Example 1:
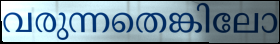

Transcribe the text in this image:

വരുന്നതെങ്കിലോ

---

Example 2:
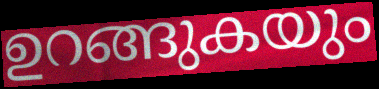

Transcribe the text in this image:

ഉറങ്ങുകയും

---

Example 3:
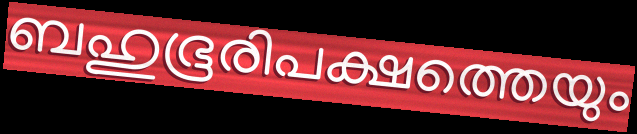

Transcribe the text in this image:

ബഹുഭൂരിപക്ഷത്തെയും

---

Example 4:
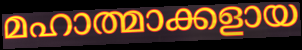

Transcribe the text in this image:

മഹാത്മാക്കളായ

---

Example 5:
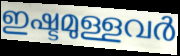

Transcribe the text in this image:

ഇഷ്ടമുള്ളവർ